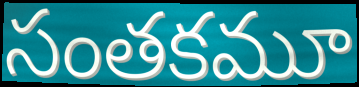
సంతకమూ